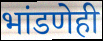
भांडणेही